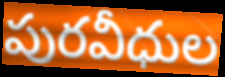
పురవీధుల